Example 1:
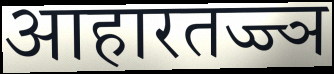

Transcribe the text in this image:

आहारतज्ज्ञ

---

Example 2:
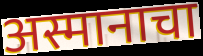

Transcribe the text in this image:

अस्मानाचा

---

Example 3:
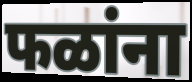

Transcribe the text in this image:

फळांना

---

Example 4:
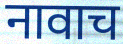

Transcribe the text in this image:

नावाच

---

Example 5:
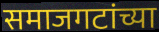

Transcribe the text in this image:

समाजगटांच्या